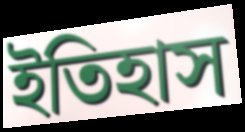
ইতিহাস